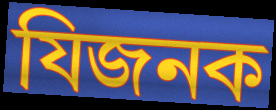
যিজনক